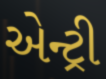
એન્ટ્રી